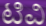
ಟಿವಿ